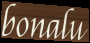
bonalu